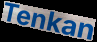
Tenkan